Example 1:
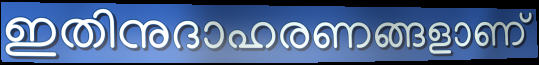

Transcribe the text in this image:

ഇതിനുദാഹരണങ്ങളാണ്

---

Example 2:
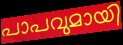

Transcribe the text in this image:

പാപവുമായി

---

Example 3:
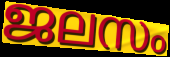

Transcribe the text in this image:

ജലസം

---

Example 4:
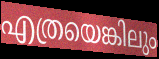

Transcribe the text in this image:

എത്രയെങ്കിലും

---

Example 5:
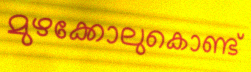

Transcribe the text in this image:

മുഴക്കോലുകൊണ്ട്